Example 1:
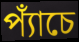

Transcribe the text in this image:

প্যাঁচে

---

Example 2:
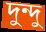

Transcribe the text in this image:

দুন্দু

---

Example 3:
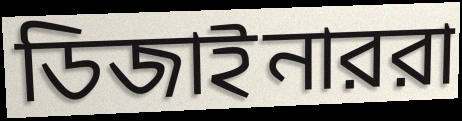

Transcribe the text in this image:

ডিজাইনাররা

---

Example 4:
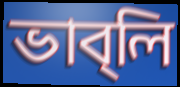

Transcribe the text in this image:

ভাব্‌লি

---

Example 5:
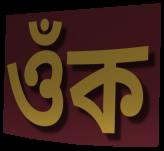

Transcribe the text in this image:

ওঁক